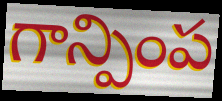
గాన్పింప